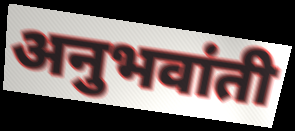
अनुभवांती